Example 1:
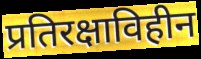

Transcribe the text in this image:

प्रतिरक्षाविहीन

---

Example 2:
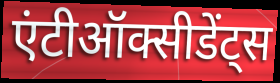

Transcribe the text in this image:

एंटीऑक्सीडेंट्स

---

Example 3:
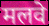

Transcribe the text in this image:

मलवे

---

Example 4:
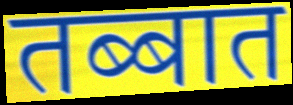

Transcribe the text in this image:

तब्बात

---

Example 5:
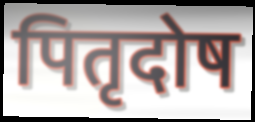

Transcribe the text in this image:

पितृदोष